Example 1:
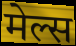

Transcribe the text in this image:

मेल्स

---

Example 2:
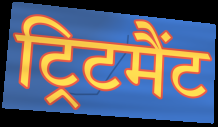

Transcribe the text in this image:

ट्रिटमैंट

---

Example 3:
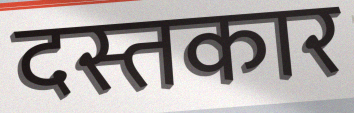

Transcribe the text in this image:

दस्‍तकार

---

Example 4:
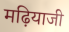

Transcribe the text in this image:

मढ़ियाजी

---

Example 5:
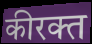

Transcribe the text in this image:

कीरक्त